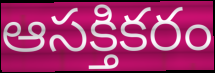
ఆసక్తికరం